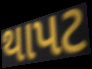
થાપટ